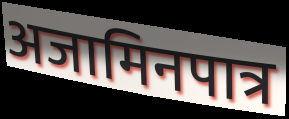
अजामिनपात्र